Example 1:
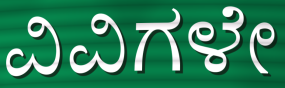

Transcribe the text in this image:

ವಿವಿಗಳೇ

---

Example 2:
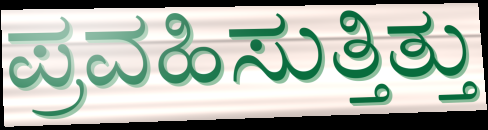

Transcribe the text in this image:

ಪ್ರವಹಿಸುತ್ತಿತ್ತು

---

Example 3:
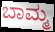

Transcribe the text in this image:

ಬಾಮ್ಮ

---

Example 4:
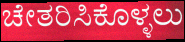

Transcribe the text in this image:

ಚೇತರಿಸಿಕೊಳ್ಳಲು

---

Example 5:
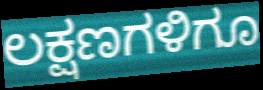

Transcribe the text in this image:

ಲಕ್ಷಣಗಳಿಗೂ